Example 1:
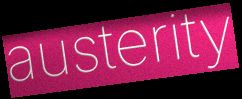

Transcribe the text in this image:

austerity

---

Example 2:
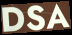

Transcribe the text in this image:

DSA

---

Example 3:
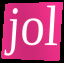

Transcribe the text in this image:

jol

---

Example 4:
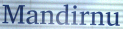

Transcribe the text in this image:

Mandirnu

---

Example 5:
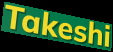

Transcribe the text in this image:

Takeshi